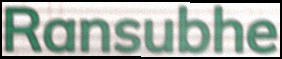
Ransubhe